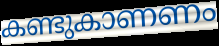
കണ്ടുകാണണം